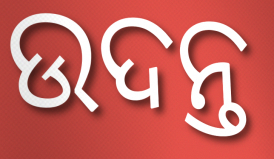
ଉଦନ୍ତ